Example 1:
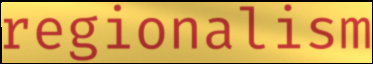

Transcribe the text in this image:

regionalism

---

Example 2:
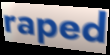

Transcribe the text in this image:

raped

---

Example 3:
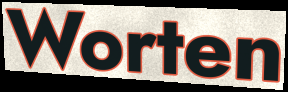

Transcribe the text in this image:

Worten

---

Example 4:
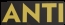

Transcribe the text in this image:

ANTI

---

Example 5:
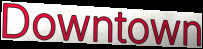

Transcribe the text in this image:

Downtown